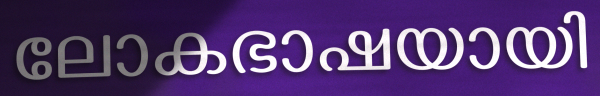
ലോകഭാഷയായി